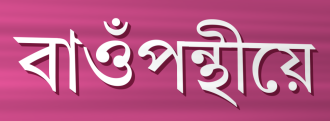
বাওঁপন্থীয়ে